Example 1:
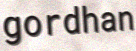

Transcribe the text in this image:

gordhan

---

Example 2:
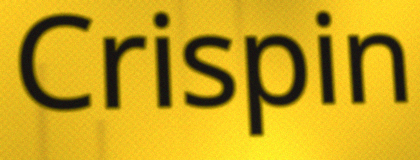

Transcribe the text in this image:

Crispin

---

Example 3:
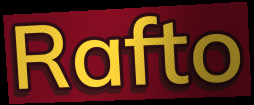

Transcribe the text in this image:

Rafto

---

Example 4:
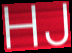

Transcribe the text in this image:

HJ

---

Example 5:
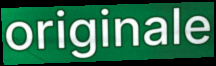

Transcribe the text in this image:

originale